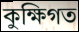
কুক্ষিগত